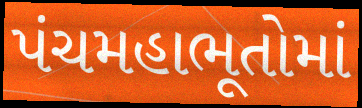
પંચમહાભૂતોમાં